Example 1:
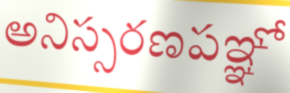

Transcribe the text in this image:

అనిస్సరణపఞ్ఞో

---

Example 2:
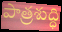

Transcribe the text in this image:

పాత్రశుద్ధి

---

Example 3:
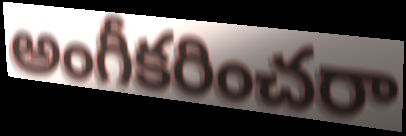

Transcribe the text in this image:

అంగీకరించరా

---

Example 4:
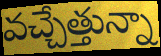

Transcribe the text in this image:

వచ్చేత్తున్నా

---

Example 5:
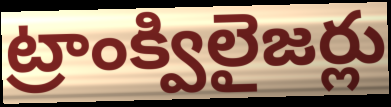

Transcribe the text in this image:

ట్రాంక్విలైజర్లు